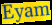
Eyam